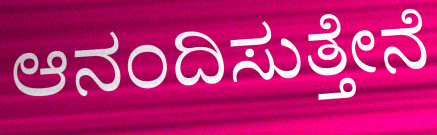
ಆನಂದಿಸುತ್ತೇನೆ